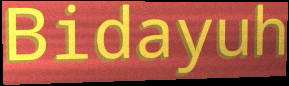
Bidayuh